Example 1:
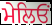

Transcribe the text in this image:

ਮੇਲਿਓਂ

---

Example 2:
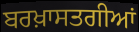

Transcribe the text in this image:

ਬਰਖ਼ਾਸਤਗੀਆਂ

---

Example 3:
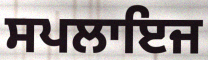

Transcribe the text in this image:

ਸਪਲਾਇਜ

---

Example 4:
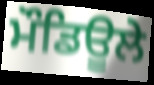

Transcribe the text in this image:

ਮੌਡਿਊਲੇ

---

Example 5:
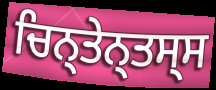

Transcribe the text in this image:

ਚਿਨ੍ਤੇਨ੍ਤਸ੍ਸ